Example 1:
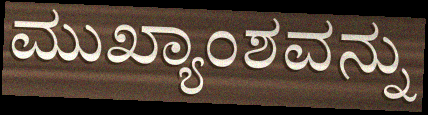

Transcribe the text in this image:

ಮುಖ್ಯಾಂಶವನ್ನು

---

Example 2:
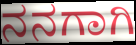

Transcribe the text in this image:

ನನಗಾಗಿ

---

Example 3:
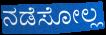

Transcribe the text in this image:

ನಡೆಸೋಲ್ಲ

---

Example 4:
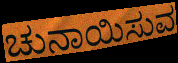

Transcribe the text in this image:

ಚುನಾಯಿಸುವ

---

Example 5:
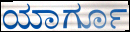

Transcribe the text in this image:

ಯಾರ್ಗೂ